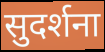
सुदर्शना